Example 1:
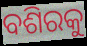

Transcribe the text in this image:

ବଶିରକୁ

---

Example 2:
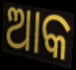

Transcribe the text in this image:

ଆକ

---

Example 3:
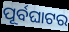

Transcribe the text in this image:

ପୂର୍ବଘାଟର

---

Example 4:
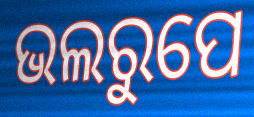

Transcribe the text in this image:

ଭଲରୁପେ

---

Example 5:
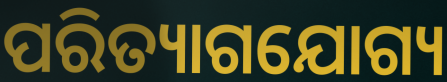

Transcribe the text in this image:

ପରିତ୍ୟାଗଯୋଗ୍ୟ